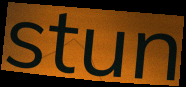
stun